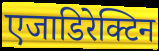
एजाडिरेक्टिन